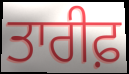
ਤਾਰੀਫ਼